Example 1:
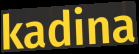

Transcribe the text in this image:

kadina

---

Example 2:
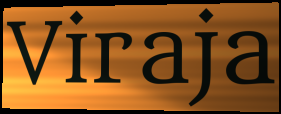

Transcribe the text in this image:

Viraja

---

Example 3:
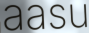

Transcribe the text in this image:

aasu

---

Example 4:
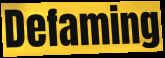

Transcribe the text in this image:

Defaming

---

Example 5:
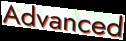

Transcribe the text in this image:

Advanced